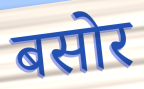
बसोर